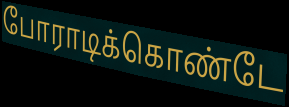
போராடிக்கொண்டே